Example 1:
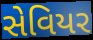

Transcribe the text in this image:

સેવિયર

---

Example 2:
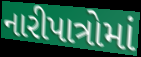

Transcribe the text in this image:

નારીપાત્રોમાં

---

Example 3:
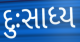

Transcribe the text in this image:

દુઃસાધ્ય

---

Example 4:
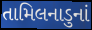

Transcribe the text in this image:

તામિલનાડુનાં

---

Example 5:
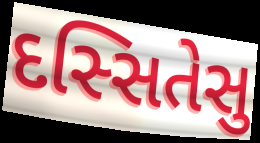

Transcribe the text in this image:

દસ્સિતેસુ